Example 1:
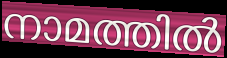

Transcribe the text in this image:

നാമത്തിൽ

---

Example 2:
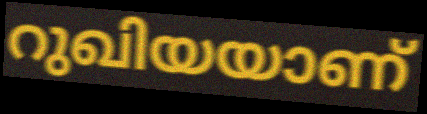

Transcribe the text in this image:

റുഖിയയാണ്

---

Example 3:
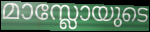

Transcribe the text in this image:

മാസ്ലോയുടെ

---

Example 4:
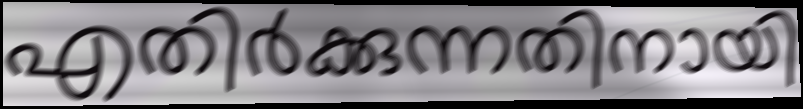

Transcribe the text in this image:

എതിർക്കുന്നതിനായി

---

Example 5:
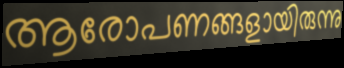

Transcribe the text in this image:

ആരോപണങ്ങളായിരുന്നു